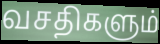
வசதிகளும்